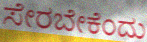
ಸೇರಬೇಕೆಂದು